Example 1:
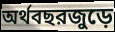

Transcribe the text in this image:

অর্থবছরজুড়ে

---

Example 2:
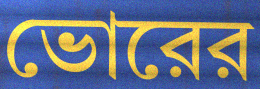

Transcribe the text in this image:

ভোরের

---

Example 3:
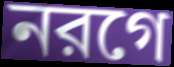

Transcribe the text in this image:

নরগে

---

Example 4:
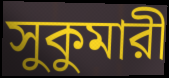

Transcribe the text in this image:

সুকুমারী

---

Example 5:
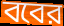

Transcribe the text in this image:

ববের